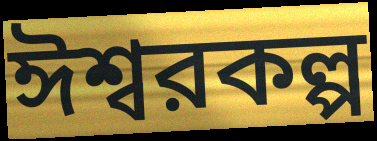
ঈশ্বরকল্প